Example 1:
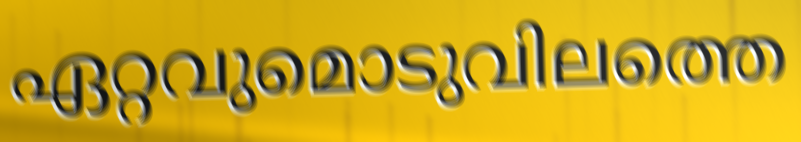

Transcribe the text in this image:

ഏറ്റവുമൊടുവിലത്തെ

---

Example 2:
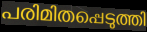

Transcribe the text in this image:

പരിമിതപ്പെടുത്തി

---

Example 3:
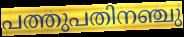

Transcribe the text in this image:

പത്തുപതിനഞ്ചു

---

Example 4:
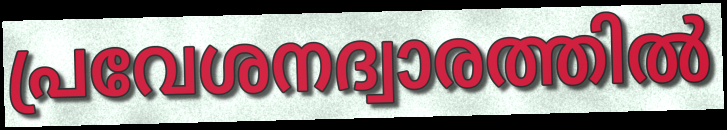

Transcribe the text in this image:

പ്രവേശനദ്വാരത്തിൽ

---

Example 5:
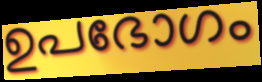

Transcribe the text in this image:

ഉപഭോഗം